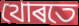
থোৰতে